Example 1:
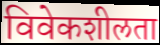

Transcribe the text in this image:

विवेकशीलता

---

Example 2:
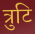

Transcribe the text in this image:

त्रुटि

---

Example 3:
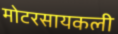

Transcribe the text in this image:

मोटरसायकली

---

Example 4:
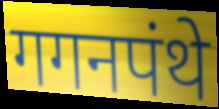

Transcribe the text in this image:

गगनपंथे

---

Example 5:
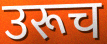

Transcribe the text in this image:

उरूच